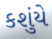
કશુંયે